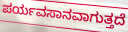
ಪರ್ಯವಸಾನವಾಗುತ್ತದೆ